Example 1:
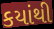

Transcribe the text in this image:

કયાંથી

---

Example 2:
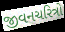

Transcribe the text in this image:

જીવનચરિત્રો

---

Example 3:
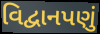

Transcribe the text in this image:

વિદ્વાનપણું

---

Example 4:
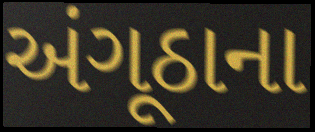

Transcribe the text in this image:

અંગૂઠાના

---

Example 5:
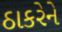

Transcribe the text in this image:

ઠાકરેને